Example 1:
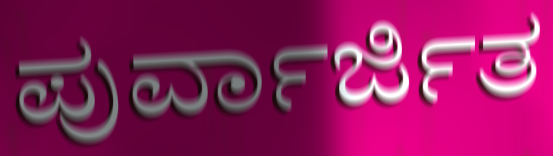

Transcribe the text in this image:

ಪುರ್ವಾರ್ಜಿತ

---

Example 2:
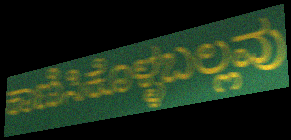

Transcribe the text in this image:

ಕಾಣಿಸಿಕೊಳ್ಳಬಲ್ಲವು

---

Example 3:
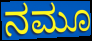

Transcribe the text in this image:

ನಮೂ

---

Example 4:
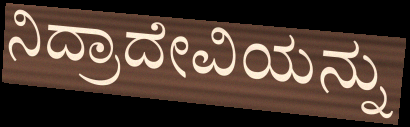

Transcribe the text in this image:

ನಿದ್ರಾದೇವಿಯನ್ನು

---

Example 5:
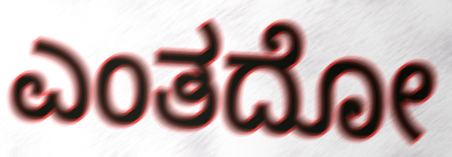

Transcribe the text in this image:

ಎಂತದೋ